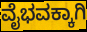
ವೈಭವಕ್ಕಾಗಿ